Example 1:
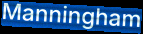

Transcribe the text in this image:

Manningham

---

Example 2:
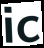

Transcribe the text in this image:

ic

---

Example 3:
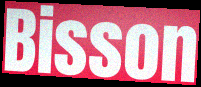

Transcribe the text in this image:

Bisson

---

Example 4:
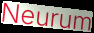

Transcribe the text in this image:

Neurum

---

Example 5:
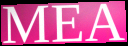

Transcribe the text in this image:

MEA